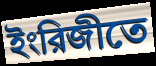
ইংরিজীতে